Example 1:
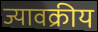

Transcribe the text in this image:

ज्यावक्रीय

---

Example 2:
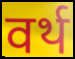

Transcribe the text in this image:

वर्थ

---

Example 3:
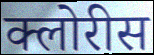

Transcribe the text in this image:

क्लोरीस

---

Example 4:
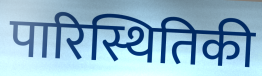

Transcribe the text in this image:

पारिस्थितिकी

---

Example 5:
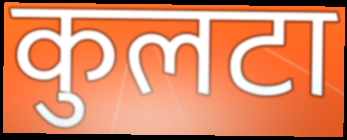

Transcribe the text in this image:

कुलटा